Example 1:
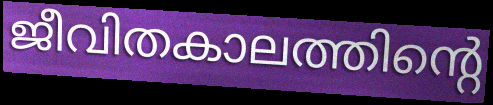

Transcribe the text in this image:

ജീവിതകാലത്തിന്റെ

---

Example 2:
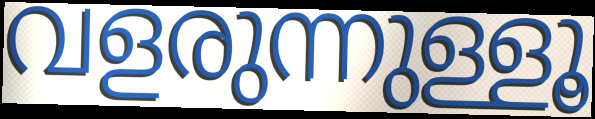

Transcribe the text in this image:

വളരുന്നുള്ളൂ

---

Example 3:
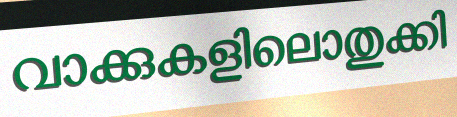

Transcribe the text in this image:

വാക്കുകളിലൊതുക്കി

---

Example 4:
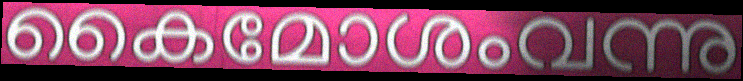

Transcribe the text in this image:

കൈമോശംവന്നു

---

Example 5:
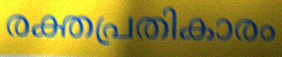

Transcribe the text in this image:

രക്തപ്രതികാരം